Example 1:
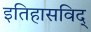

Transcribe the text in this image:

इतिहासविद्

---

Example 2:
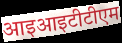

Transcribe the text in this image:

आइआइटीटीएम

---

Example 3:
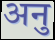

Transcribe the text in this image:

अनु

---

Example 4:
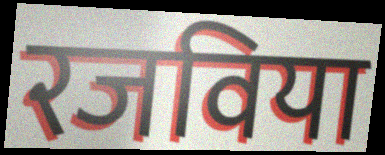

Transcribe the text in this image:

रजविया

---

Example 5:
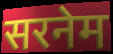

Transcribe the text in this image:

सरनेम